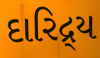
દારિદ્ર્ય